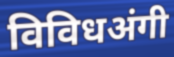
विविधअंगी